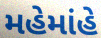
મહેમાંહે